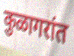
कुळागरांत